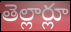
తెల్లార్లూ